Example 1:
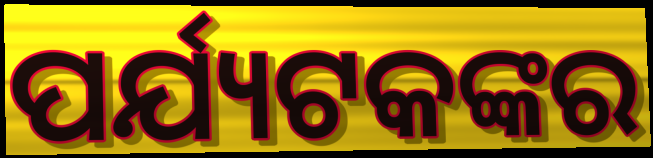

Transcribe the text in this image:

ପର୍ଯ୍ୟଟକଙ୍କର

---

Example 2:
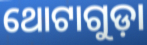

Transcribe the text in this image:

ଥୋଟାଗୁଡ଼ା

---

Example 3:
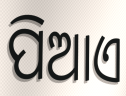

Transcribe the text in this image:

ପିଆଏ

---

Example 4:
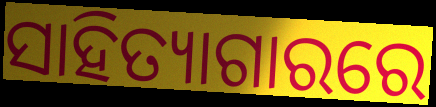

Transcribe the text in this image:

ସାହିତ୍ୟାଗାରରେ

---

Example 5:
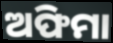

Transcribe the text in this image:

ଅଫିମା